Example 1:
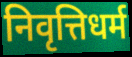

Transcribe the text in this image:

निवृत्तिधर्म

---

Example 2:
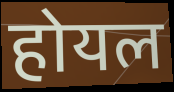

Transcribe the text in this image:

होयल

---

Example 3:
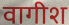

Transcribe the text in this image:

वागीश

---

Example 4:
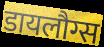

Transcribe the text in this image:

डायलौग्स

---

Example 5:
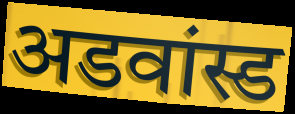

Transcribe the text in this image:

अडवांस्ड